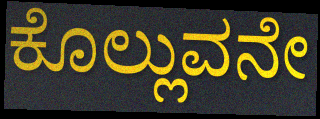
ಕೊಲ್ಲುವನೇ